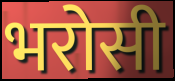
भरोसी